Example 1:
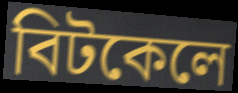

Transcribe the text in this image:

বিটকেলে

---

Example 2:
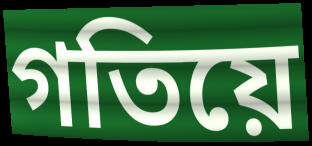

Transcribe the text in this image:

গতিয়ে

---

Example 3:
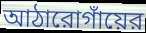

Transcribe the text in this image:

আঠারোগাঁয়ের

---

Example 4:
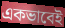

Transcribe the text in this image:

একভাবেই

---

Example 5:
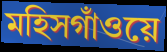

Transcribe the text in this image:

মহিসগাঁওয়ে